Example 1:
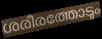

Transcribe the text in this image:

ശരീരത്തോടും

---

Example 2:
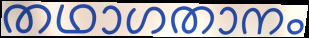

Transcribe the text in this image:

തഥാഗതാനം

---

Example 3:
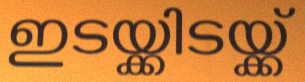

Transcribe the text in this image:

ഇടയ്ക്കിടയ്ക്ക്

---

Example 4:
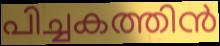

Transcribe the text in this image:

പിച്ചകത്തിൻ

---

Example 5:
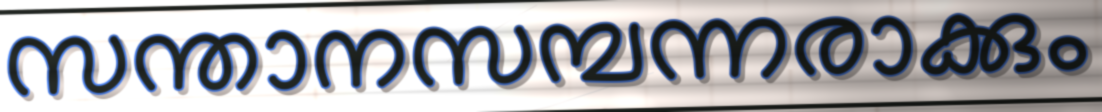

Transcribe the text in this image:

സന്താനസമ്പന്നരാക്കും